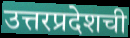
उत्तरप्रदेशची